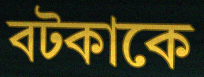
বটকাকে